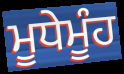
ਮੂਧੇਮੂੰਹ